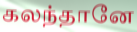
கலந்தானே